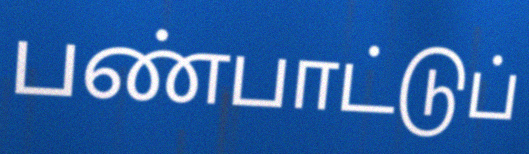
பண்பாட்டுப்